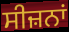
ਸੀਜ਼ਨਾਂ